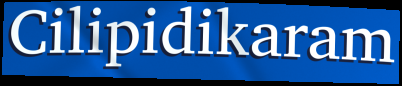
Cilipidikaram